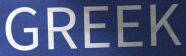
GREEK